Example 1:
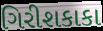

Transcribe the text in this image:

ગિરીશકાકા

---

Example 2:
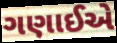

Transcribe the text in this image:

ગણાઈએ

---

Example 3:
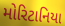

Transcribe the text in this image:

મોરિટાનિયા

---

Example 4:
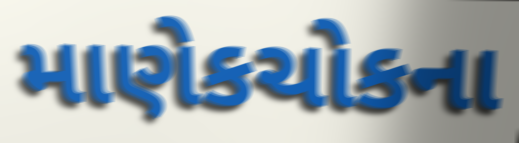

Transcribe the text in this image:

માણેકચોકના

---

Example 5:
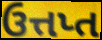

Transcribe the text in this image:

ઉત્તપ્ત